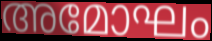
അമോഘം